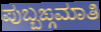
ಪುಬ್ಬಙ್ಗಮಾತಿ